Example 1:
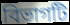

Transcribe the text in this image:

বিভাগটি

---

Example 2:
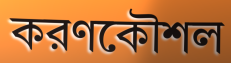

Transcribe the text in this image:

করণকৌশল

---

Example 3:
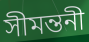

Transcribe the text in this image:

সীমন্তনী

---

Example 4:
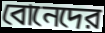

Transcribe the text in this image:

বোনেদের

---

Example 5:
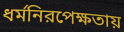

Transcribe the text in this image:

ধর্মনিরপেক্ষতায়